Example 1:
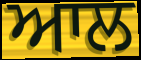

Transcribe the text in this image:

ਆਲ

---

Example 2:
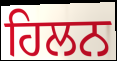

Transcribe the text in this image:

ਹਿਲਨ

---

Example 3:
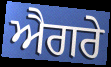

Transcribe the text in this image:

ਐਗਰੇ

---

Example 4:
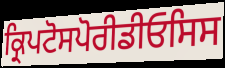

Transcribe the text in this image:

ਕ੍ਰਿਪਟੋਸਪੋਰੀਡੀਓਸਿਸ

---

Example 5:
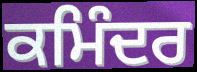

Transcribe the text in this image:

ਕਮਿੰਦਰ